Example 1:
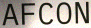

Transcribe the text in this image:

AFCON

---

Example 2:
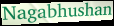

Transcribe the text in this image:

Nagabhushan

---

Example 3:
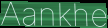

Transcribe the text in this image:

Aankhe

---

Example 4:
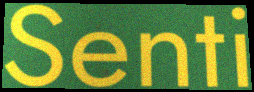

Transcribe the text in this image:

Senti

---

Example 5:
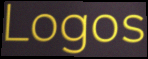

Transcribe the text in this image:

Logos